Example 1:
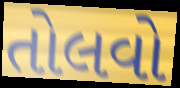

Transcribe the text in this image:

તોલવો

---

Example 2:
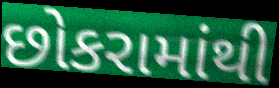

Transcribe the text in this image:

છોકરામાંથી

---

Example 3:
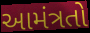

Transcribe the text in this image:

આમંત્રતો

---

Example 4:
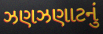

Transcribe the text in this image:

ઝણઝણાટનું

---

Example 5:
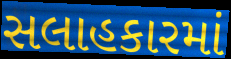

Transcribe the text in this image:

સલાહકારમાં